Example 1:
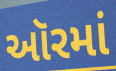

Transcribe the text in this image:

ઑરમાં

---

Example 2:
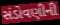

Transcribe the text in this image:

સંડોવણીની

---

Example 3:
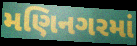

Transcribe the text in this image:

મણિનગરમાં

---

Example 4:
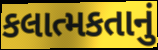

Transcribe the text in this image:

કલાત્મકતાનું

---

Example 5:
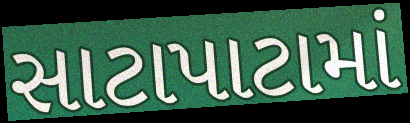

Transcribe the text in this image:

સાટાપાટામાં